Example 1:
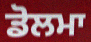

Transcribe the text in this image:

ਡੋਲਮਾ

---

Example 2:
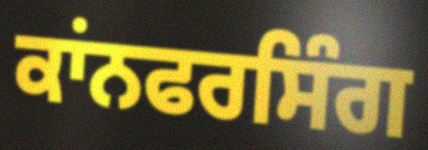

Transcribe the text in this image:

ਕਾਂਨਫਰਸਿੰਗ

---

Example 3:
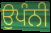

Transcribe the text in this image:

ਉਪੰਨੀ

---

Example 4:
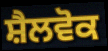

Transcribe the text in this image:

ਸ਼ੈਲਵੋਕ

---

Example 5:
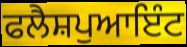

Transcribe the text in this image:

ਫਲੈਸ਼ਪੁਆਇੰਟ